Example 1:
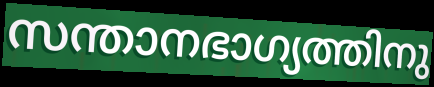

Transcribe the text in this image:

സന്താനഭാഗ്യത്തിനു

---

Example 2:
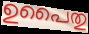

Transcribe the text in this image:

ഉപൈതു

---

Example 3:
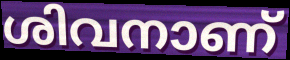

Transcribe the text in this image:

ശിവനാണ്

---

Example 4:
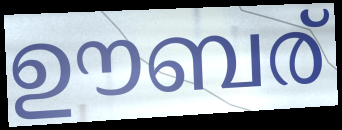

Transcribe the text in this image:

ഊബര്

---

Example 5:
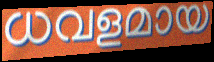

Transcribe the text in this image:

ധവളമായ